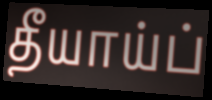
தீயாய்ப்